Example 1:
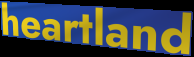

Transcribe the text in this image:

heartland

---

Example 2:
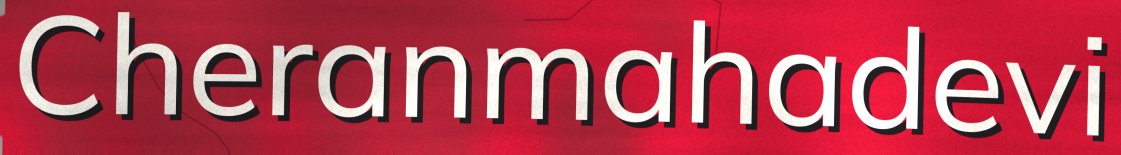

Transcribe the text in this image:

Cheranmahadevi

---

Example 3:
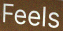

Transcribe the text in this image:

Feels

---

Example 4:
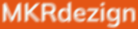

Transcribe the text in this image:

MKRdezign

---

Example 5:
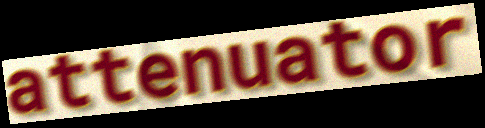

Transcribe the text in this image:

attenuator